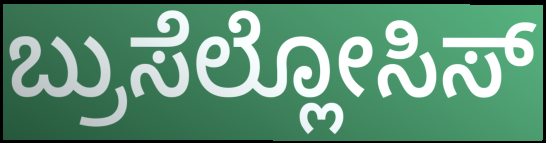
ಬ್ರುಸೆಲ್ಲೋಸಿಸ್